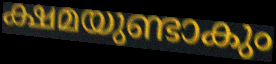
ക്ഷമയുണ്ടാകും